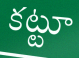
కట్టూ